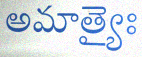
అమాత్యైః